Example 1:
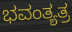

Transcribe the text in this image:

ಭವಂತ್ಯತ್ರ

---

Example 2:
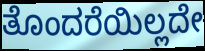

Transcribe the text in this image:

ತೊಂದರೆಯಿಲ್ಲದೇ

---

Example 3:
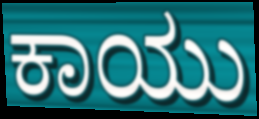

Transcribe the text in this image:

ಕಾಯು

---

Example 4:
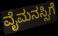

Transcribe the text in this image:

ವೈಮನಸ್ಸಿಗೆ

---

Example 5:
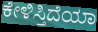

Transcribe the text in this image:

ಕೇಳಿಸ್ತಿದೆಯಾ